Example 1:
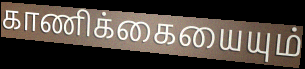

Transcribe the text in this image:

காணிக்கையையும்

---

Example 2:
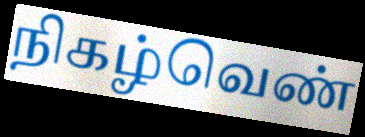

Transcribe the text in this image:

நிகழ்வெண்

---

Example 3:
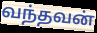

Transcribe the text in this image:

வந்தவன்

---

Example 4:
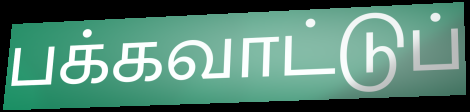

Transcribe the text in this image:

பக்கவாட்டுப்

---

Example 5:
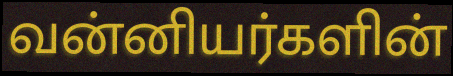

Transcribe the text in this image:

வன்னியர்களின்